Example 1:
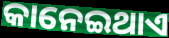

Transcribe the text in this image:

କାନେଇଥାଏ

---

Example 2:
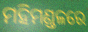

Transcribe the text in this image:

ମହିମଣ୍ଡଳରେ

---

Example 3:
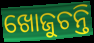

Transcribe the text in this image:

ଖୋଜୁଚନ୍ତି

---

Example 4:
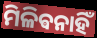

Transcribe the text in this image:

ମିଳିଵନାହିଁ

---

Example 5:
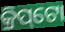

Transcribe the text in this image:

କ୍ରିପ୍‌ଟୋ